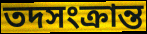
তদসংক্রান্ত